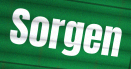
Sorgen